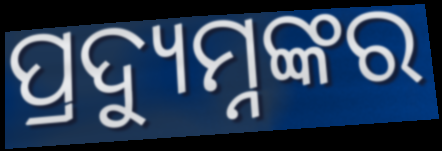
ପ୍ରଦ୍ୟୁମ୍ନଙ୍କର